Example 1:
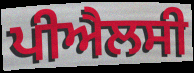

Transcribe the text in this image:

ਪੀਐਲਸੀ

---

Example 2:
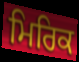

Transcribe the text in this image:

ਮਿਰਿਕ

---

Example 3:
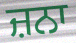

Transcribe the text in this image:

ਜ਼ਨਾ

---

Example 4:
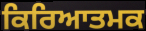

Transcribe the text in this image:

ਕਿਰਿਆਤਮਕ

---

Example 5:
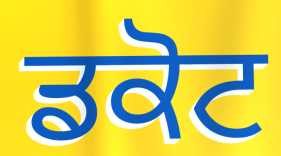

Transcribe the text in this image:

ਡਕੋਟ